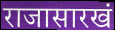
राजासारखं